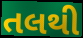
તલથી